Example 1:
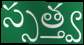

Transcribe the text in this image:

స్సత్త్వ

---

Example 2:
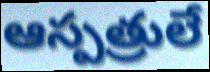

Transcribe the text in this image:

ఆస్పత్రులే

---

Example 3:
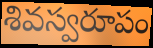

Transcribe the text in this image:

శివస్వరూపం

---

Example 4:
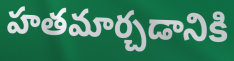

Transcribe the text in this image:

హతమార్చడానికి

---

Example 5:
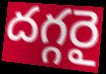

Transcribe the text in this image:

దగ్గరై